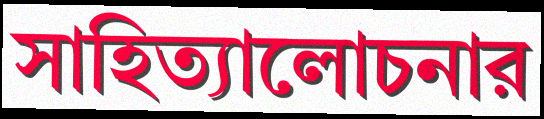
সাহিত্যালোচনার